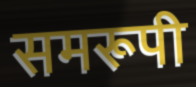
समरूपी